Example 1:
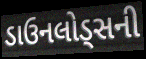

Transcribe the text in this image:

ડાઉનલોડ્સની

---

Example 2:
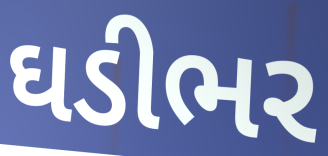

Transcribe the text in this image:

ઘડીભર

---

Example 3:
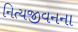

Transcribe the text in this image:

નિત્યજીવનના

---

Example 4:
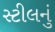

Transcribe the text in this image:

સ્ટીલનું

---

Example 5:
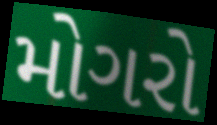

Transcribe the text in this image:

મોગરો